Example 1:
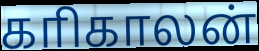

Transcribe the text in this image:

கரிகாலன்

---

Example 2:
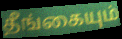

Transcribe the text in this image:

தீங்கையும்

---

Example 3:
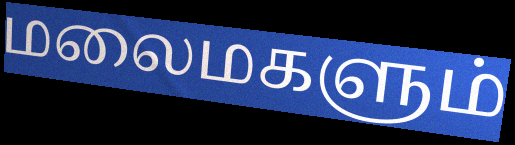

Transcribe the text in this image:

மலைமகளும்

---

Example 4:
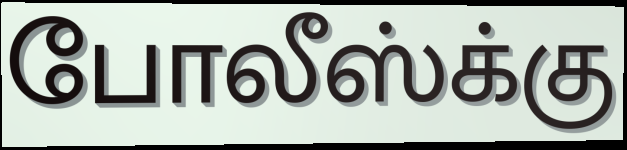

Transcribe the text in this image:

போலீஸ்க்கு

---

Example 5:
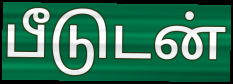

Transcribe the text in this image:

பீடுடன்